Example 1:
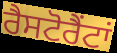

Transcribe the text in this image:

ਰੈਸਟੋਰੈਂਟਾਂ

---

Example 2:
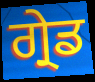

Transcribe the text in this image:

ਗ੍ਰੇਡ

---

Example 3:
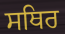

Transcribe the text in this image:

ਸਥਿਰ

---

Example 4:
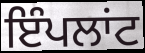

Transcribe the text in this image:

ਇੰਪਲਾਂਟ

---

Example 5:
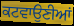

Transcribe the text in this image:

ਕਟਵਾਉਣੀਆਂ